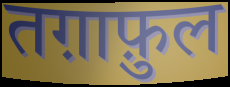
तग़ाफ़ुल